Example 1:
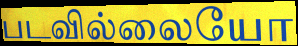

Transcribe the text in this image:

படவில்லையோ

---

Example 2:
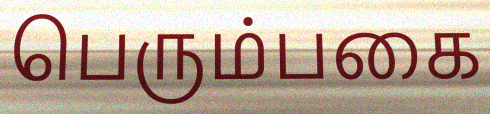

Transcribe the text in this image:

பெரும்பகை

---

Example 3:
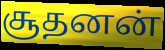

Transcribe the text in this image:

சூதனன்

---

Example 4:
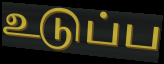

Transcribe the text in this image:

உடுப்ப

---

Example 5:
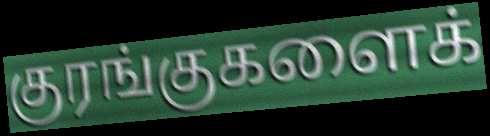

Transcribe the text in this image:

குரங்குகளைக்